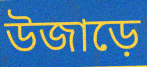
উজাড়ে